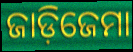
ଜାଡ଼ିଜେମା